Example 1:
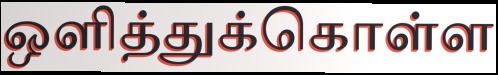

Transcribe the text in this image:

ஒளித்துக்கொள்ள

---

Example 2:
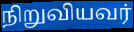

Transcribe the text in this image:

நிறுவியவர்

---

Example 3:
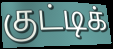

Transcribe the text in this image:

குட்டிக்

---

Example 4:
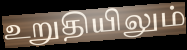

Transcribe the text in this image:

உறுதியிலும்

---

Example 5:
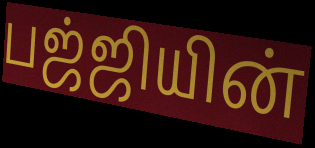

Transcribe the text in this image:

பஜ்ஜியின்